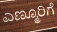
ಎಣ್ಮೂರಿಗೆ